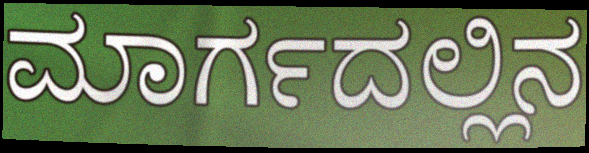
ಮಾರ್ಗದಲ್ಲಿನ